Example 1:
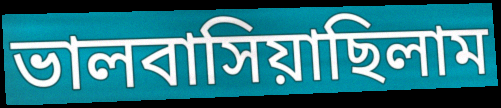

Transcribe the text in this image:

ভালবাসিয়াছিলাম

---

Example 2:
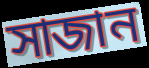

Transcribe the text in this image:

সাজান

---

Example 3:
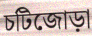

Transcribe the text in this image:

চটিজোড়া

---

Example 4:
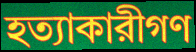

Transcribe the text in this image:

হত্যাকারীগণ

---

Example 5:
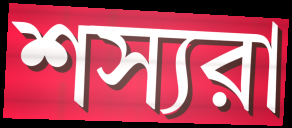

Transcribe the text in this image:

শস্যরা